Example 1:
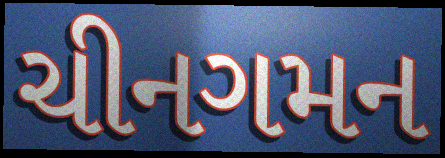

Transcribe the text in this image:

ચીનગમન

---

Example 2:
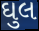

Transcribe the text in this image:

ઘુલ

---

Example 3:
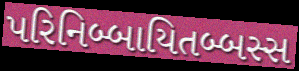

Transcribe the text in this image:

પરિનિબ્બાયિતબ્બસ્સ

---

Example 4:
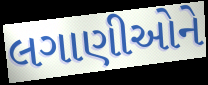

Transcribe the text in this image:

લગાણીઓને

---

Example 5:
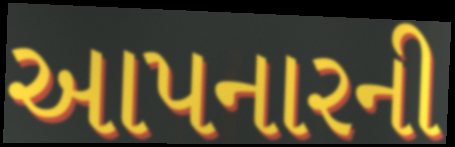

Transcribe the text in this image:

આપનારની